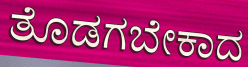
ತೊಡಗಬೇಕಾದ